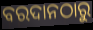
ବରଦାନଠାରୁ